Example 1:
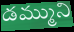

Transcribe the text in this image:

డమ్ముని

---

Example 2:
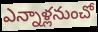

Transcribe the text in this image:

ఎన్నాళ్లనుంచో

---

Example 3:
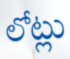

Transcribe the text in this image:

లోట్లు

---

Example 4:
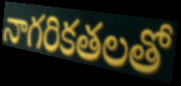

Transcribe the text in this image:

నాగరికతలతో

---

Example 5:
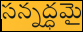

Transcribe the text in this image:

సన్నద్ధమై